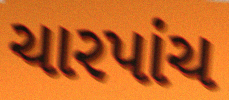
ચારપાંચ